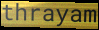
thrayam